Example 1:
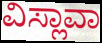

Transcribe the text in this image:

ವಿಸ್ಲಾವಾ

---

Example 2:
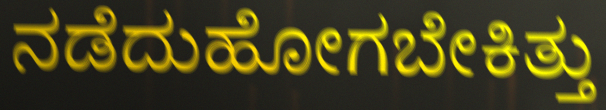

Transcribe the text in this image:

ನಡೆದುಹೋಗಬೇಕಿತ್ತು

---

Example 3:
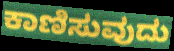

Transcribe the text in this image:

ಕಾಣಿಸುವುದು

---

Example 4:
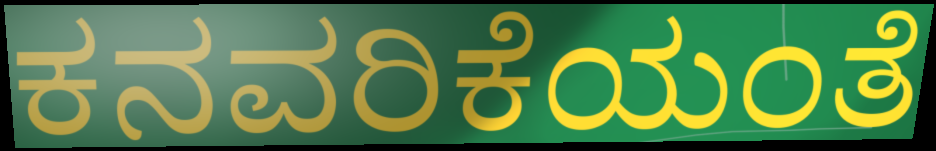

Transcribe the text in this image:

ಕನವರಿಕೆಯಂತೆ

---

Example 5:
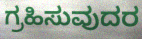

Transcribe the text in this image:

ಗ್ರಹಿಸುವುದರ